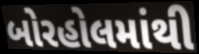
બોરહોલમાંથી